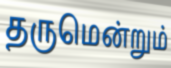
தருமென்றும்